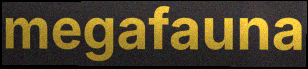
megafauna